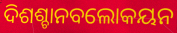
ଦିଶଶ୍ଚାନବଲୋକୟନ